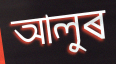
আলুৰ